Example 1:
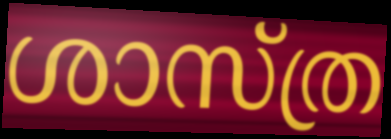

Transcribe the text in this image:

ശാസ്ത്ര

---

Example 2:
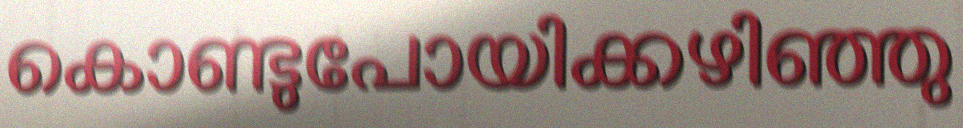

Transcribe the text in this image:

കൊണ്ടുപോയിക്കഴിഞ്ഞു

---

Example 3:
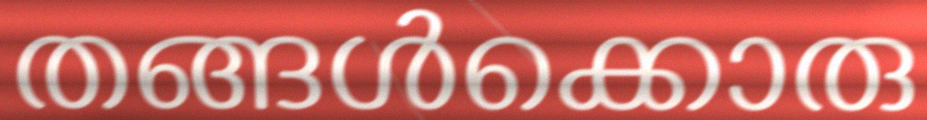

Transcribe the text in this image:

തങ്ങൾക്കൊരു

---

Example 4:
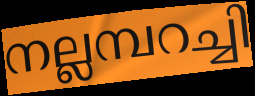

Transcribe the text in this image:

നല്ലമ്പറച്ചി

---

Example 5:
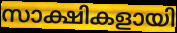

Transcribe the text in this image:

സാക്ഷികളായി